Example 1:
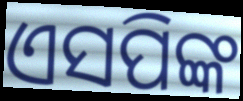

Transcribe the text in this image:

ଏସପିଙ୍କ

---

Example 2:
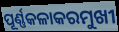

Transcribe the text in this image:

ପୂର୍ଣ୍ଣକଳାକରମୁଖୀ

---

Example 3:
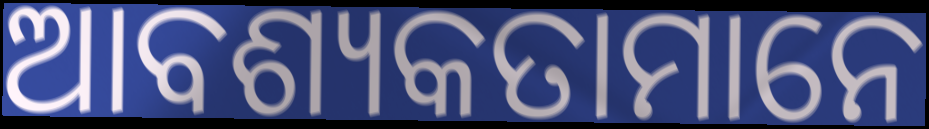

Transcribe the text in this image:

ଆବଶ୍ୟକତାମାନେ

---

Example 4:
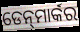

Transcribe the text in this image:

ଡେନ୍‍ମାର୍କର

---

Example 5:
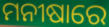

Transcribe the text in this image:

ମନୀଷାରେ